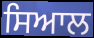
ਸਿਆਲ